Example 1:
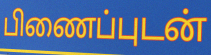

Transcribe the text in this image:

பிணைப்புடன்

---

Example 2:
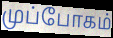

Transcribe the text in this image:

முப்போகம்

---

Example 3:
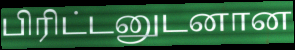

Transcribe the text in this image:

பிரிட்டனுடனான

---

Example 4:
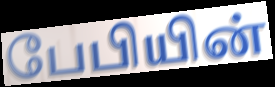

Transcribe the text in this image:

பேபியின்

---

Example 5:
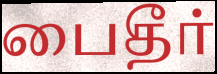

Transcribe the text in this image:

பைதீர்